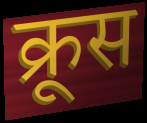
क्रूस